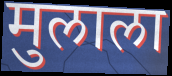
मुलाला